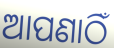
ଆପଣାଠିଁ